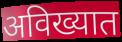
अविख्यात